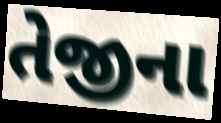
તેજીના